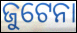
ଜୁଟେନା